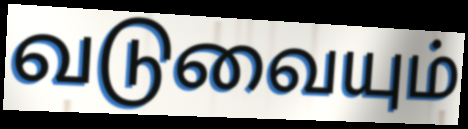
வடுவையும்